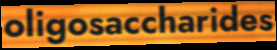
oligosaccharides